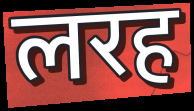
लरह